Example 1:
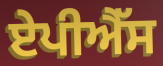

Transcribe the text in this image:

ਏਪੀਐੱਸ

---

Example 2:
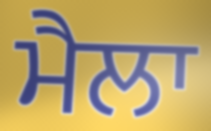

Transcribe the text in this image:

ਮੈਲਾ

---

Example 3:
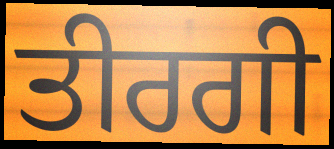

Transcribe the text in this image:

ਤੀਰਗੀ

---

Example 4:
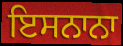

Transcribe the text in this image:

ਇਸਨਾਨਾ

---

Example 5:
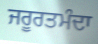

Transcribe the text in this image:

ਜਰੂਰਤਮੰਦਾ